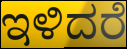
ಇಳಿದರೆ